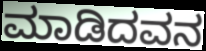
ಮಾಡಿದವನ